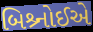
બિશ્ર્નોઈએ